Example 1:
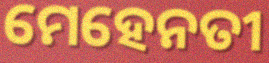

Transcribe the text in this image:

ମେହେନତୀ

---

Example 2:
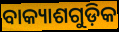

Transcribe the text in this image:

ବାକ୍ୟାଶଗୁଡ଼ିକ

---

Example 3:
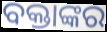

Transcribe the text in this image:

ବକ୍ତାଙ୍କର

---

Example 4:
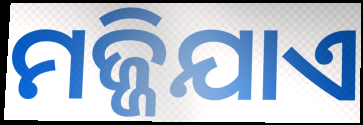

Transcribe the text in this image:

ମଜ୍ଜିଯାଏ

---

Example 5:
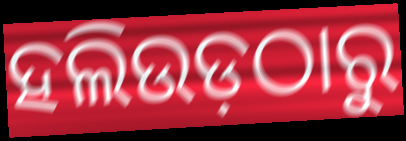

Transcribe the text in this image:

ହଲିଉଡ଼ଠାରୁ